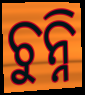
ଚୁନ୍ନି